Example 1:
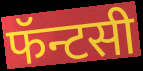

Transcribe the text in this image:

फॅन्टसी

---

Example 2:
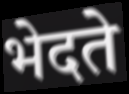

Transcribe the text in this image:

भेदते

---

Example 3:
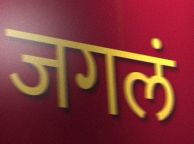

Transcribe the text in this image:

जगलं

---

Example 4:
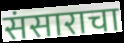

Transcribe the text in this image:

संसाराचा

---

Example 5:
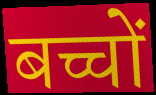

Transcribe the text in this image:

बच्चों